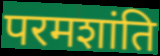
परमशांति